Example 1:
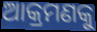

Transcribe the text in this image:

ଆକ୍ରମଣକୁ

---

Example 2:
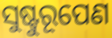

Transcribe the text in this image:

ସୁଷ୍ଟୁରୂପେଣ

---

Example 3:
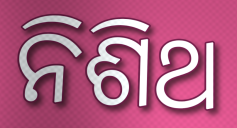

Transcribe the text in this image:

ନିଶିଥ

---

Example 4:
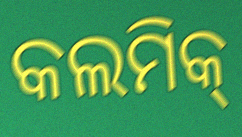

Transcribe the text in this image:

କଲମିକ୍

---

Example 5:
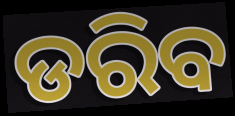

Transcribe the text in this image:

ଡରିବ